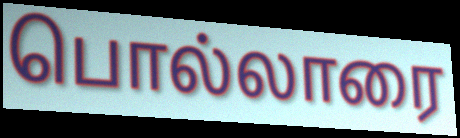
பொல்லாரை